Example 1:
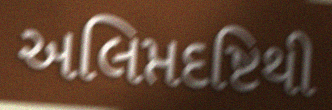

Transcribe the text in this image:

અલિપ્તદષ્ટિથી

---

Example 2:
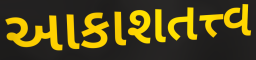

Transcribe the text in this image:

આકાશતત્ત્વ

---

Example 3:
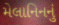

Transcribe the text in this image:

મેલાનિનનું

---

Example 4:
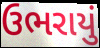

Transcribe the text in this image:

ઉભરાયું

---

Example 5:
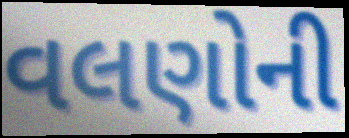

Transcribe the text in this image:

વલણોની